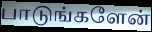
பாடுங்களேன்